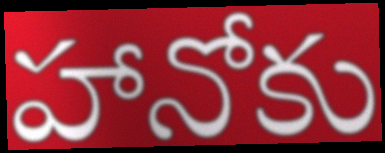
హానోకు